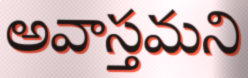
అవాస్తమని